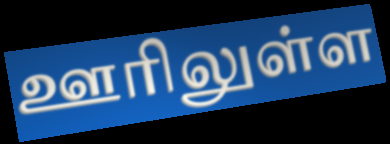
ஊரிலுள்ள